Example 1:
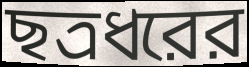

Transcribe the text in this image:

ছত্রধরের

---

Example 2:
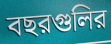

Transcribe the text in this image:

বছরগুলির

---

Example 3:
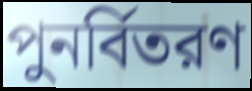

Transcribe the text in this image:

পুনর্বিতরণ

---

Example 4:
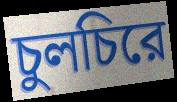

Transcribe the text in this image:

চুলচিরে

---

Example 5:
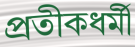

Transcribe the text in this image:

প্রতীকধর্মী